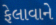
ફેલાવાને